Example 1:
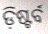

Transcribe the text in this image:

ଡ଼ିଷ୍ଟର୍ବ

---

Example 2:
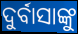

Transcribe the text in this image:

ଦୁର୍ବାସାଙ୍କୁ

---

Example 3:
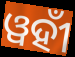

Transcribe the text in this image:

ୱହୀଁ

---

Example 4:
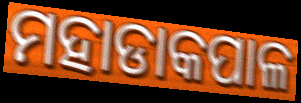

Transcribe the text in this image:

ମହାଡାକପାଳ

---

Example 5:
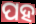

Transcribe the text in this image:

ପହ